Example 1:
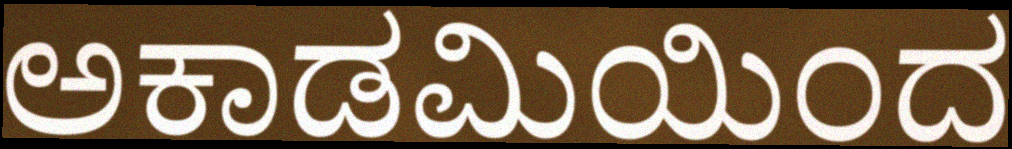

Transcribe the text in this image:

ಅಕಾಡಮಿಯಿಂದ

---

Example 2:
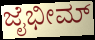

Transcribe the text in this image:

ಜೈಭೀಮ್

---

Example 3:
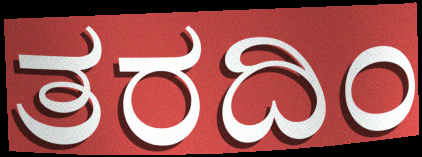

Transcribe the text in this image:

ತರದಿಂ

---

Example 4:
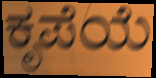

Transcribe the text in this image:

ಕೃಪೆಯೆ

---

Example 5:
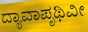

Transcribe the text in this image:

ದ್ಯಾವಾಪೃಥಿವೀ